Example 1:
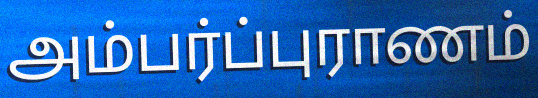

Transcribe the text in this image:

அம்பர்ப்புராணம்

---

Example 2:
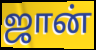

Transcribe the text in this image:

ஜான்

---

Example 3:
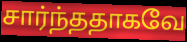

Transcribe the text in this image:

சார்ந்ததாகவே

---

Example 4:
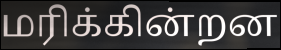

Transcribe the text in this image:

மரிக்கின்றன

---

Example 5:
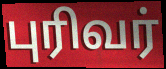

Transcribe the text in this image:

புரிவர்